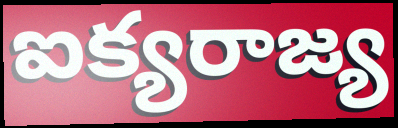
ఐక్యరాజ్య